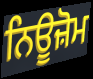
ਨਿਊਜ਼ੋਮ